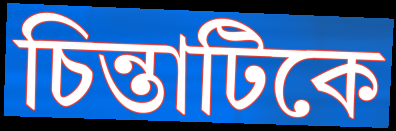
চিন্তাটিকে